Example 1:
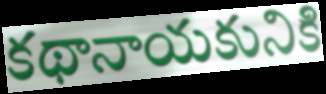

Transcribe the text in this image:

కథానాయకునికి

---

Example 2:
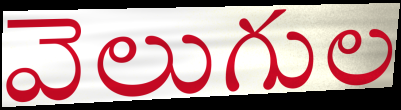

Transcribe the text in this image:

వెలుగుల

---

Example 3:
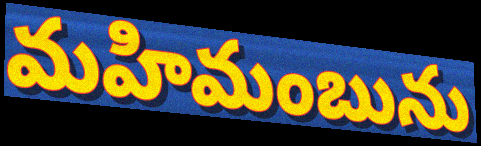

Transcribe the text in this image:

మహిమంబును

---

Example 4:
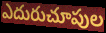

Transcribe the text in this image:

ఎదురుచూపుల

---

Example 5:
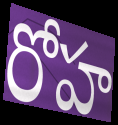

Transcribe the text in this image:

రోహ